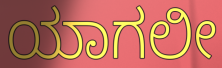
ಯಾಗಲೀ